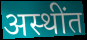
अस्थींत